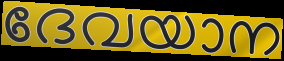
ദേവയാന